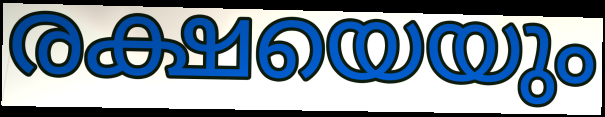
രക്ഷയെയും